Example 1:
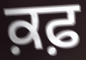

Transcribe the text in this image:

ਕ਼ਫ਼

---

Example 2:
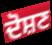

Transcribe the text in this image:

ਦੋਸ਼ਣ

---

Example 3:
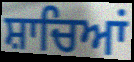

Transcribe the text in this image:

ਸ਼ਾਚਿਆਂ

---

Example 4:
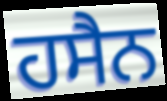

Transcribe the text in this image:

ਹਸੈਨ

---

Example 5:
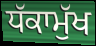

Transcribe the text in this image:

ਧੱਕਾਮੁੱਖ